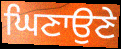
ਘਿਣਾਉਣੇ